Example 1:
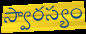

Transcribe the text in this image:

స్వారస్యం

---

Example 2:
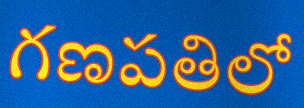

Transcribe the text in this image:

గణపతిలో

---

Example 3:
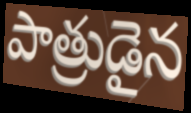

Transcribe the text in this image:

పాత్రుడైన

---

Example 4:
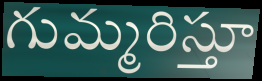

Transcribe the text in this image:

గుమ్మరిస్తూ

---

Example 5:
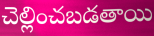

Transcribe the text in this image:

చెల్లించబడతాయి